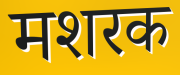
मशरक